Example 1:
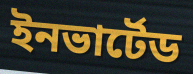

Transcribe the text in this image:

ইনভার্টেড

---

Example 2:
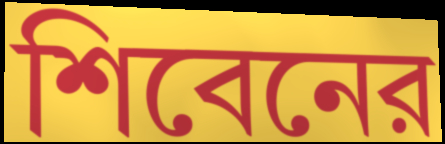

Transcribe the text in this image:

শিবেনের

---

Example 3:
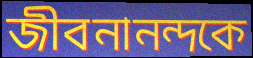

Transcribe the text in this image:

জীবনানন্দকে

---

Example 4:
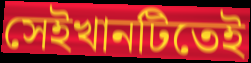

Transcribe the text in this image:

সেইখানটিতেই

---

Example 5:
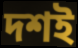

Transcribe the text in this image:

দশই